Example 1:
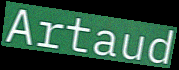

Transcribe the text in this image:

Artaud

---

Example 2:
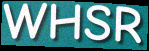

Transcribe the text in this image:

WHSR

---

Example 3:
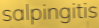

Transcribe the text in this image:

salpingitis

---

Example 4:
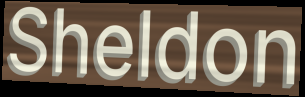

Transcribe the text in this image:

Sheldon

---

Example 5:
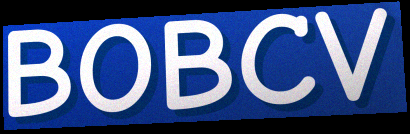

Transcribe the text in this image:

BOBCV